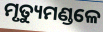
ମୃତ୍ୟୁମଣ୍ଡଳେ